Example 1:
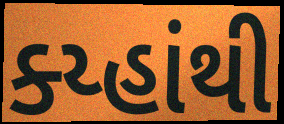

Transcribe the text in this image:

ક્ય્હાંથી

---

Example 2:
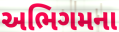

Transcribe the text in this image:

અભિગમના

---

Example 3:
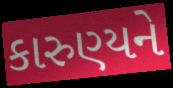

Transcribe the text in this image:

કારુણ્યને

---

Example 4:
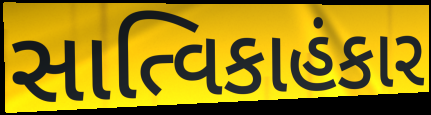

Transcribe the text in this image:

સાત્વિકાહંકાર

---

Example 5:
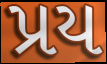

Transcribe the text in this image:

પ્રય